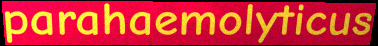
parahaemolyticus